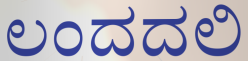
ಲಂದದಲಿ